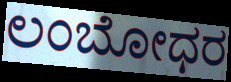
ಲಂಬೋಧರ